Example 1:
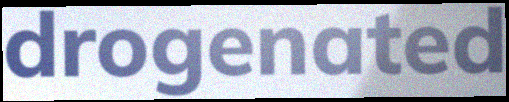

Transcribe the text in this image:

drogenated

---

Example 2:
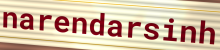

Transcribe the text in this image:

narendarsinh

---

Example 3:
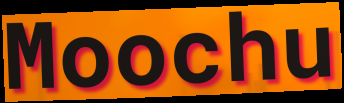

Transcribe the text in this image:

Moochu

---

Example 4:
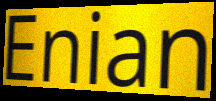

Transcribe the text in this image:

Enian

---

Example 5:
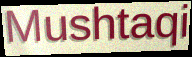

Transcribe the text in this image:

Mushtaqi